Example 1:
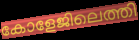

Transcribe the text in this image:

കോളേജിലെത്തി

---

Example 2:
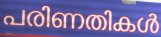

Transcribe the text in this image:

പരിണതികൾ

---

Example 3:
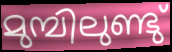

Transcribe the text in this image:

മുമ്പിലുണ്ടു്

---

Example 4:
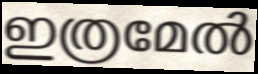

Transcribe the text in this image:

ഇത്രമേൽ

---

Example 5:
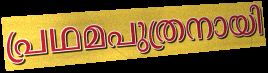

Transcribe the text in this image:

പ്രഥമപുത്രനായി